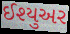
ઈશ્યુઅર